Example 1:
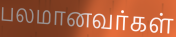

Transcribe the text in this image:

பலமானவர்கள்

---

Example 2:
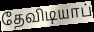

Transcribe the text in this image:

தேவிடியாப்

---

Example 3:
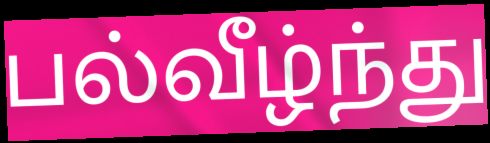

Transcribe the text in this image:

பல்வீழ்ந்து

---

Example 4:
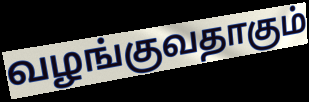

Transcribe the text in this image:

வழங்குவதாகும்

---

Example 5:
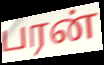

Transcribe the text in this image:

பரன்